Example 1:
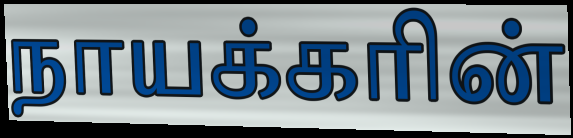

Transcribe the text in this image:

நாயக்கரின்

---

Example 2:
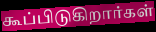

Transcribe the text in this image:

கூப்பிடுகிறார்கள்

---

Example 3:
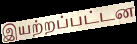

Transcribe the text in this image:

இயற்றப்பட்டன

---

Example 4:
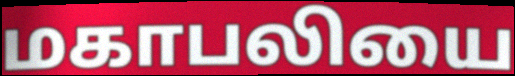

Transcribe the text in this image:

மகாபலியை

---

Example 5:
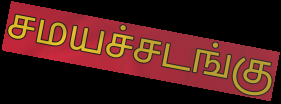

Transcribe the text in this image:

சமயச்சடங்கு